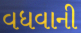
વધવાની